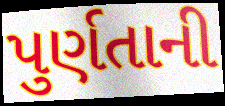
પુર્ણતાની